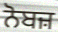
ਨੋਬਜ਼